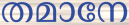
തമാനേ